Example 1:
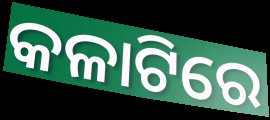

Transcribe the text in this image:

କଳାଟିରେ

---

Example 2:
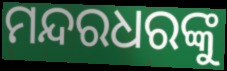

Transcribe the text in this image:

ମନ୍ଦରଧରଙ୍କୁ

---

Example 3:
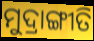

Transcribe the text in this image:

ମୁଦ୍ରାଙ୍ଗୀତି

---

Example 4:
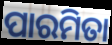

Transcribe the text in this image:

ପାରମିତା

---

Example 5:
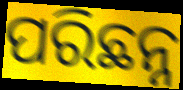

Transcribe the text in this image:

ପରିଛନ୍ନ